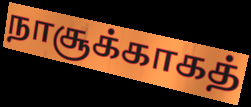
நாசூக்காகத்